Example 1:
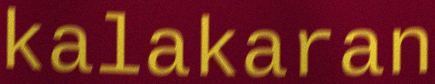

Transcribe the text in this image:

kalakaran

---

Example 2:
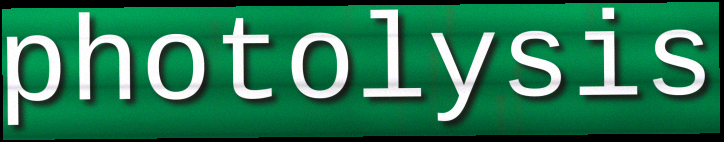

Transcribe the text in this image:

photolysis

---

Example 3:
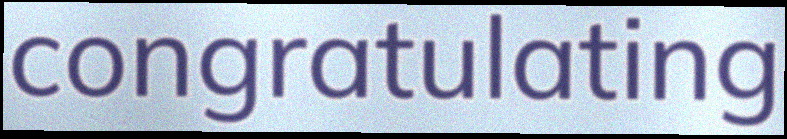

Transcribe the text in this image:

congratulating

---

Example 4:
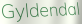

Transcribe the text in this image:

Gyldendal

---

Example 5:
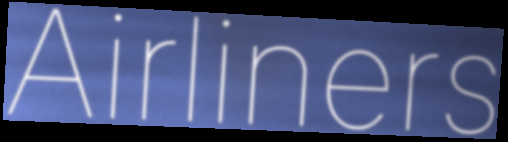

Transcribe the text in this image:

Airliners